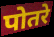
पोतरे